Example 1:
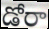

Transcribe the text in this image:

డోరా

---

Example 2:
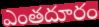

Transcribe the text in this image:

ఎంతదూరం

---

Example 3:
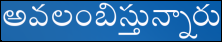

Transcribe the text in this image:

అవలంబిస్తున్నారు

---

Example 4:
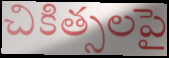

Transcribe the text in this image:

చికిత్సలపై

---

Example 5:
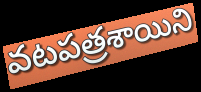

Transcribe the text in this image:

వటపత్రశాయిని